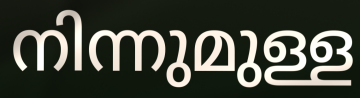
നിന്നുമുള്ള